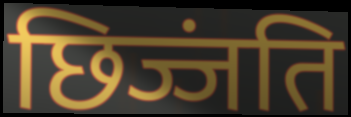
छिज्जंति